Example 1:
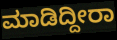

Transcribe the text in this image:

ಮಾಡಿದ್ದೀರಾ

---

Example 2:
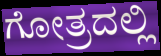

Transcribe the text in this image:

ಗೋತ್ರದಲ್ಲಿ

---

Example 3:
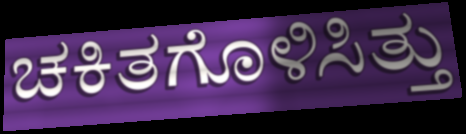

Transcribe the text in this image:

ಚಕಿತಗೊಳಿಸಿತ್ತು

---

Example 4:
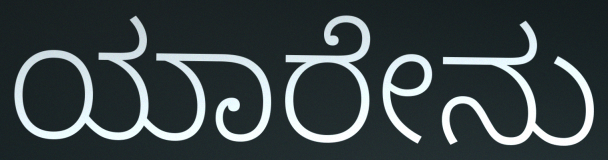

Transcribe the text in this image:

ಯಾರೇನು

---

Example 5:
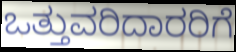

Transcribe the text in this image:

ಒತ್ತುವರಿದಾರರಿಗೆ